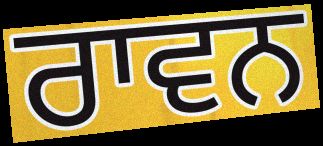
ਰਾਵਨ